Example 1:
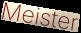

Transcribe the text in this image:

Meister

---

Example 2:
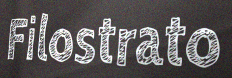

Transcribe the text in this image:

Filostrato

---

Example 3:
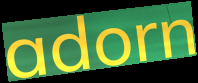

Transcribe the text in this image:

adorn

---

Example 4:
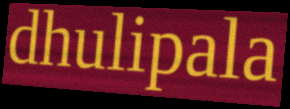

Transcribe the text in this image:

dhulipala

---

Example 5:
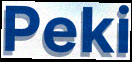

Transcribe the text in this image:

Peki